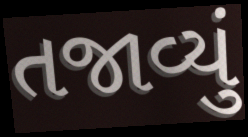
તજાવ્યું